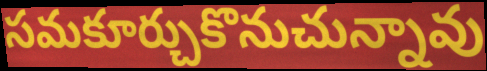
సమకూర్చుకొనుచున్నావు